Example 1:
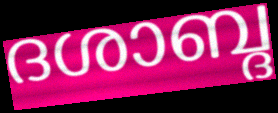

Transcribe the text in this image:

ദശാബ്ദ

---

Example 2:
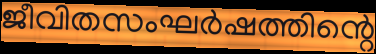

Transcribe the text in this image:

ജീവിതസംഘർഷത്തിന്റെ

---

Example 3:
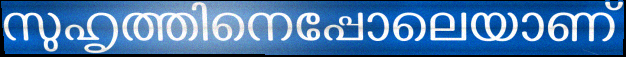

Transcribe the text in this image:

സുഹൃത്തിനെപ്പോലെയാണ്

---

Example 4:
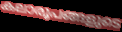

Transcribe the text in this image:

കലാരൂപങ്ങളുടെ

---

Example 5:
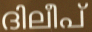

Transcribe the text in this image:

ദിലീപ്